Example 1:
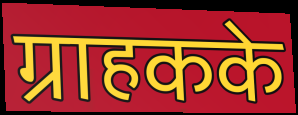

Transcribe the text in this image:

ग्राहकके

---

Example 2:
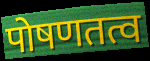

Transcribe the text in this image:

पोषणतत्व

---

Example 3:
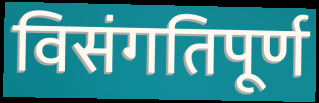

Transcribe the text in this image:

विसंगतिपूर्ण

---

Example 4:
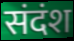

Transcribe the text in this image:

संदंश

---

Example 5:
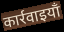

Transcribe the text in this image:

कार्रवाइयाँ